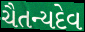
ચૈતન્યદેવ